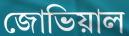
জোভিয়াল